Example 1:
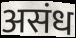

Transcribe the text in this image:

असंध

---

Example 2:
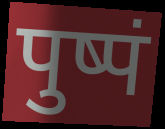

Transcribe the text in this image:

पुष्पं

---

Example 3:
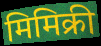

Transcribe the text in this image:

मिमिक्री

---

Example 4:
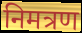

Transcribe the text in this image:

निमत्रण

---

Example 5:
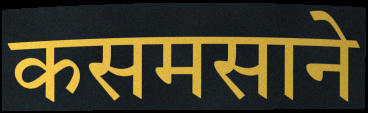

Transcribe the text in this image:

कसमसाने